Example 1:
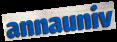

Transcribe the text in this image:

annauniv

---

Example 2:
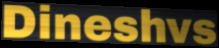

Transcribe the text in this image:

Dineshvs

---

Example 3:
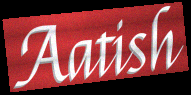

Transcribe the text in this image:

Aatish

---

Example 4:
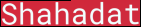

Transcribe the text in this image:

Shahadat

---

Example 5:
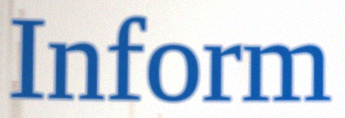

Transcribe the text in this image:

Inform